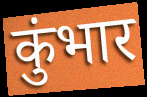
कुंभार